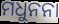
ମଧୁନନା